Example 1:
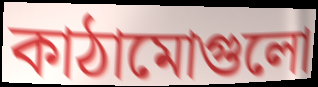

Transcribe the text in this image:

কাঠামোগুলো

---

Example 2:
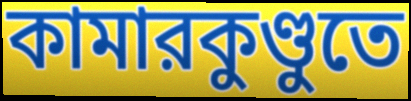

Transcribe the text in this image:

কামারকুণ্ডুতে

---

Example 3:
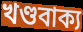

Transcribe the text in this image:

খণ্ডবাক্য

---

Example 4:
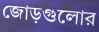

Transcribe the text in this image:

জোড়গুলোর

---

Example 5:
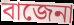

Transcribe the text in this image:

বাজেনা